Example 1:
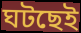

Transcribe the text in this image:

ঘটছেই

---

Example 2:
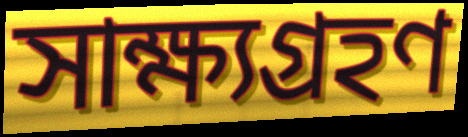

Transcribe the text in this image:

সাক্ষ্যগ্রহণ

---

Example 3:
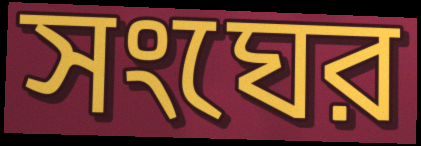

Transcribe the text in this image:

সংঘের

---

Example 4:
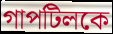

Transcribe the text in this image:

গাপটিলকে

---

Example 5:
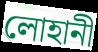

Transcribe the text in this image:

লোহানী